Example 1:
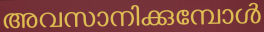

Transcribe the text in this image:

അവസാനിക്കുമ്പോൾ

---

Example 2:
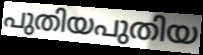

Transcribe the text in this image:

പുതിയപുതിയ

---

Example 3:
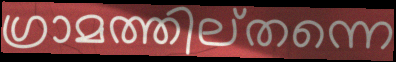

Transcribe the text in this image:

ഗ്രാമത്തില്തന്നെ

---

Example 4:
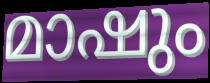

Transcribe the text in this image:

മാഷും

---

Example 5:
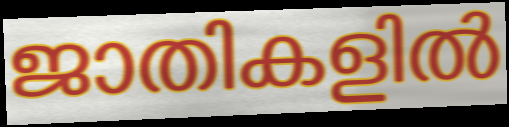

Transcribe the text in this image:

ജാതികളിൽ